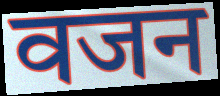
वजन